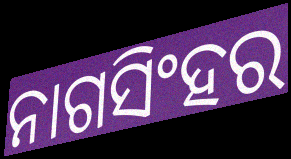
ନାଗସିଂହର